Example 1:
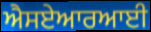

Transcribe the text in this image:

ਐਸਏਆਰਆਈ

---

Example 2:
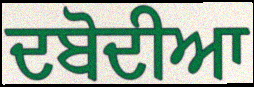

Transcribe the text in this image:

ਦਬੋਦੀਆ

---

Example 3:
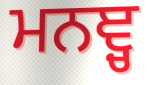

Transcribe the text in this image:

ਮਨਞ੍ਚ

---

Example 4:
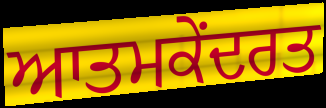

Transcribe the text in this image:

ਆਤਮਕੇਂਦਰਤ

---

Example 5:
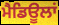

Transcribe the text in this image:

ਮੈਡਿਊਲਾਂ